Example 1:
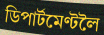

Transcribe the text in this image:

ডিপাৰ্টমেণ্টলৈ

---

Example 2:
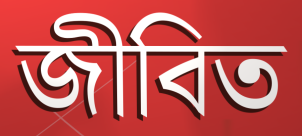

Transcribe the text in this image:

জীবিত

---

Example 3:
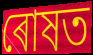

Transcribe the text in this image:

ৰোষত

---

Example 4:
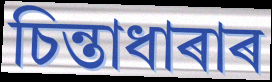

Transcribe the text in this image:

চিন্তাধাৰাৰ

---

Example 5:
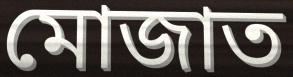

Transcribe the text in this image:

মোজাত